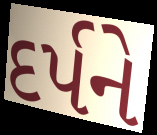
દર્પને